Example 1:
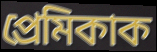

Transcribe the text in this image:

প্ৰেমিকাক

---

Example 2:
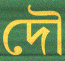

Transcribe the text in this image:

দৌ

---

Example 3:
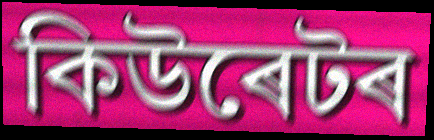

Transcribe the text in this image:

কিউৰেটৰ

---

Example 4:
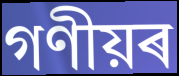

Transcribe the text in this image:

গণীয়ৰ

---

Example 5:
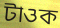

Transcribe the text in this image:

টাওক